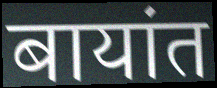
बायांत